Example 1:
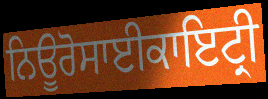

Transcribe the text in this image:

ਨਿਊਰੋਸਾਈਕਾਇਟ੍ਰੀ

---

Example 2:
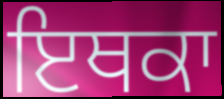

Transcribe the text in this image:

ਇਥਕਾ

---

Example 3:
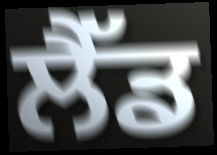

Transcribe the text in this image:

ਲੈੱਡ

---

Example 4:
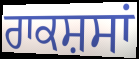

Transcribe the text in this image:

ਰਾਕਸ਼ਸਾਂ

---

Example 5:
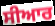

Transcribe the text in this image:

ਸੀਆਰ